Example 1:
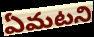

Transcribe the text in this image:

ఏమటని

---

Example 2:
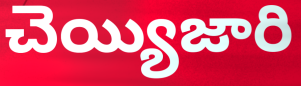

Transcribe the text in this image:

చెయ్యిజారి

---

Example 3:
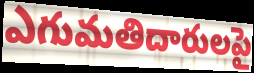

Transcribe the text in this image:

ఎగుమతిదారులపై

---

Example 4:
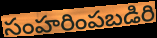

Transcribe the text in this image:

సంహరింపబడిరి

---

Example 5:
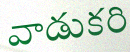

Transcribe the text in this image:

వాడుకరి